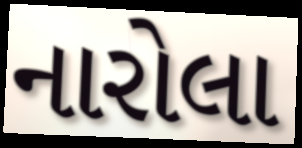
નારોલા